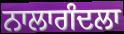
ਨਾਲਾਗੰਦਲਾ